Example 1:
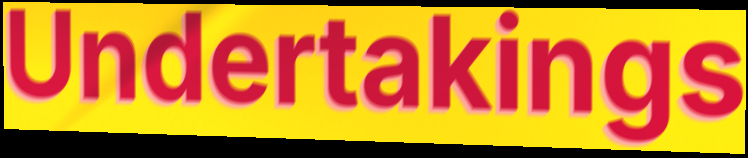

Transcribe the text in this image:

Undertakings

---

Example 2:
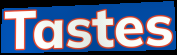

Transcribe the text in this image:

Tastes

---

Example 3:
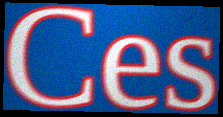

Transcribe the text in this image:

Ces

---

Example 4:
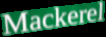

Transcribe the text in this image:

Mackerel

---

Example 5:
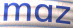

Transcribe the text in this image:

maz